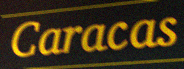
Caracas